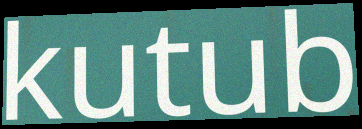
kutub